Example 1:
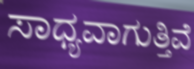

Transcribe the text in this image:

ಸಾಧ್ಯವಾಗುತ್ತಿವೆ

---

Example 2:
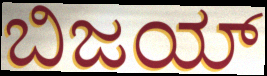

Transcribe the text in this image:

ಬಿಜಯ್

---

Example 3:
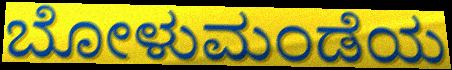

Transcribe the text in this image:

ಬೋಳುಮಂಡೆಯ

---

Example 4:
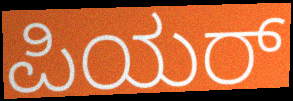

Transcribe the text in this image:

ಪಿಯರ್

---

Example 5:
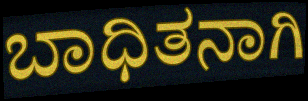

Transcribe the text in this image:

ಬಾಧಿತನಾಗಿ